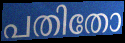
പതിതോ